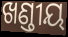
ଖଣ୍ଡୀୟ